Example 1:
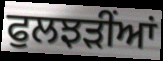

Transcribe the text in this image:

ਫੁਲਝੜੀਂਆਂ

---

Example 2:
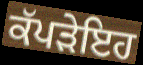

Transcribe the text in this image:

ਕੱਪੜੇਇਹ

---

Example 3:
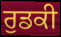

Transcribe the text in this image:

ਰੁਡਕੀ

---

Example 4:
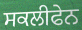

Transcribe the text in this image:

ਸਕਲੀਫੇਨ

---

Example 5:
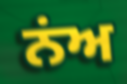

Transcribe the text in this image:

ਨਂਅ